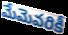
మేమెవరికీ